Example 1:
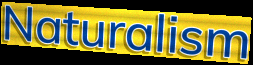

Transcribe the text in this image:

Naturalism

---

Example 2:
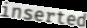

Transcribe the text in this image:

inserted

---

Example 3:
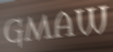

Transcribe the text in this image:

GMAW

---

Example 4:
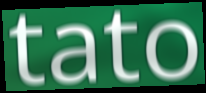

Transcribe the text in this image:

tato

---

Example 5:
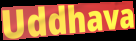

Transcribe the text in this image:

Uddhava